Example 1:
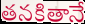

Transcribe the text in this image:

తనకితానే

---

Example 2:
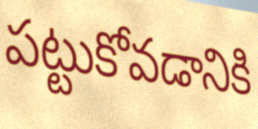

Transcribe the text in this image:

పట్టుకోవడానికి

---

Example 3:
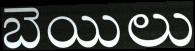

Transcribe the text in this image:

బెయిలు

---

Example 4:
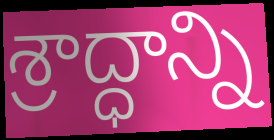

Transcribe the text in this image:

శ్రాద్ధాన్ని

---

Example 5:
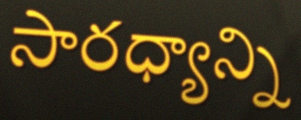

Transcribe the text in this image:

సారధ్యాన్ని